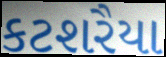
કટશરૈયા